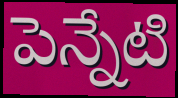
పెన్నేటి